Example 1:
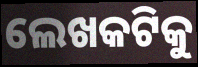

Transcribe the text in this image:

ଲେଖକଟିକୁ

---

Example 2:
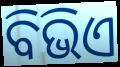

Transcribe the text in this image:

ବିଭିଏ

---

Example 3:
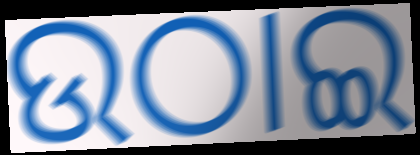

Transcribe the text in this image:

ଉଠାଇ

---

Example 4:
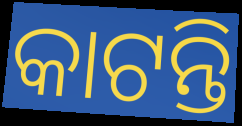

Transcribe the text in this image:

କାଟନ୍ତି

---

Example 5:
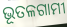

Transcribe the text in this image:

ଭୂତଳଗାମୀ